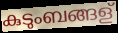
കുടുംബങ്ങള്